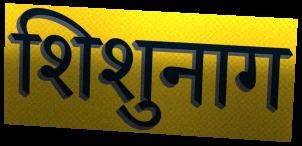
शिशुनाग